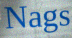
Nags